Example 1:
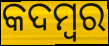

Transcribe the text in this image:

କଦମ୍ବର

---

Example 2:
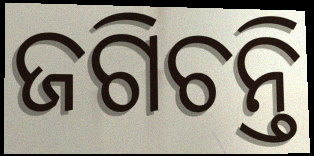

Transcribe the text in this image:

ଜଗିଚନ୍ତି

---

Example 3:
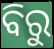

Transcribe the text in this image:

ବିରୁ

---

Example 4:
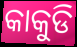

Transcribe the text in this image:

କାକୁଡି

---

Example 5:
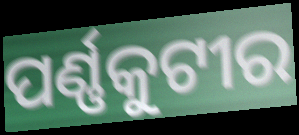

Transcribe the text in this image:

ପର୍ଣ୍ଣକୁଟୀର